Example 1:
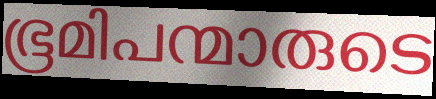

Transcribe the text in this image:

ഭൂമിപന്മാരുടെ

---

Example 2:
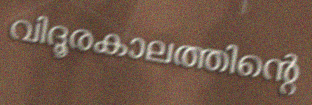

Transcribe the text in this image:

വിദൂരകാലത്തിന്റെ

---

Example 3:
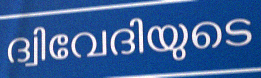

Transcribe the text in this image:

ദ്വിവേദിയുടെ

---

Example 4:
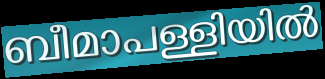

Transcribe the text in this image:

ബീമാപള്ളിയിൽ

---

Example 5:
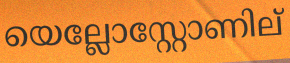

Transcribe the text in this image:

യെല്ലോസ്റ്റോണില്